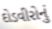
દોડવીરોનું